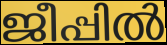
ജീപ്പിൽ